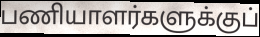
பணியாளர்களுக்குப்